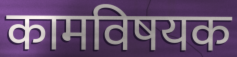
कामविषयक